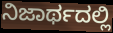
ನಿಜಾರ್ಥದಲ್ಲಿ